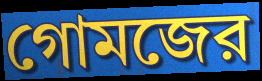
গোমজের